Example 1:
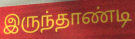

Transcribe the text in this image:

இருந்தாண்டி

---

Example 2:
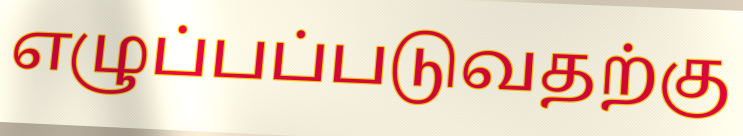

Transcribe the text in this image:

எழுப்பப்படுவதற்கு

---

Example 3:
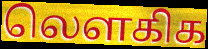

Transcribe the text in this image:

லௌகிக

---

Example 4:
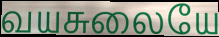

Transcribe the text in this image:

வயசுலையே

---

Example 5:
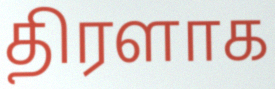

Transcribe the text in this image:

திரளாக